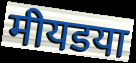
मीयडया